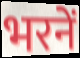
भरनें